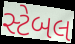
સ્ટેબલ